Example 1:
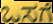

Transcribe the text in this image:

ಒಸಗೆ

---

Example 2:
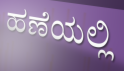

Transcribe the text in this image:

ಹಣೆಯಲ್ಲಿ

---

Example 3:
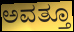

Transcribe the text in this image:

ಅವತ್ತೂ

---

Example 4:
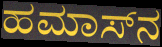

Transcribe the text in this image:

ಹಮಾಸ್‌ನ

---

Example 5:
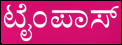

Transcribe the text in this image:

ಟೈಂಪಾಸ್